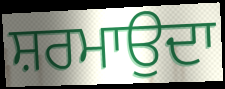
ਸ਼ਰਮਾਉਦਾ